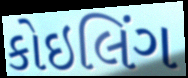
કોઇલિંગ